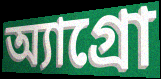
অ্যাগ্রো